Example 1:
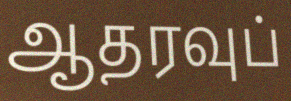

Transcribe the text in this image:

ஆதரவுப்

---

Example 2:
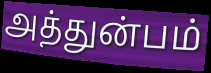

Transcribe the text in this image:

அத்துன்பம்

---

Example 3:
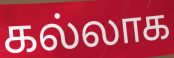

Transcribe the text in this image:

கல்லாக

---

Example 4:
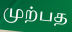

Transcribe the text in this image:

முற்பத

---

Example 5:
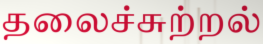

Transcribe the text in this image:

தலைச்சுற்றல்